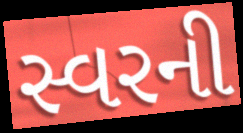
સ્વરની